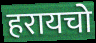
हरायचो